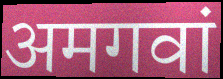
अमगवां